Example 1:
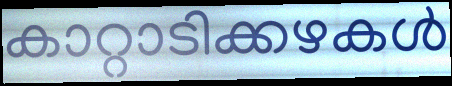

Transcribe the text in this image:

കാറ്റാടിക്കഴകൾ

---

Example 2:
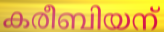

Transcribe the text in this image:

കരീബിയന്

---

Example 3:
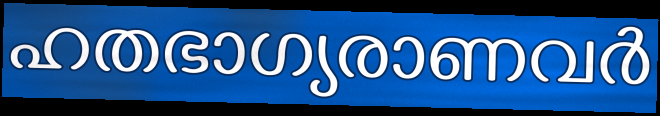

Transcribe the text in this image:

ഹതഭാഗ്യരാണവർ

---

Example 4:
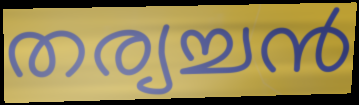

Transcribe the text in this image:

തര്യച്ചൻ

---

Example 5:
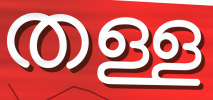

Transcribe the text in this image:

തള്ള